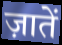
ज़ातें